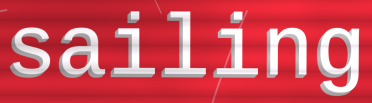
sailing